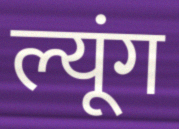
ल्यूंग